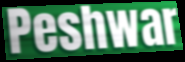
Peshwar